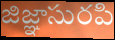
జిజ్ఞాసురపి